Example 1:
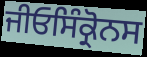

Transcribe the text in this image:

ਜੀਓਸਿੰਕ੍ਰੋਨਸ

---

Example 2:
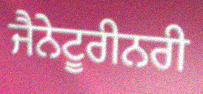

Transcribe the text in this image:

ਜੈਨੇਟੂਰੀਨਰੀ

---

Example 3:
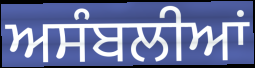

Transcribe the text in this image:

ਅਸੰਬਲੀਆਂ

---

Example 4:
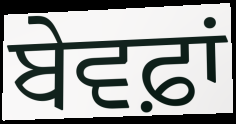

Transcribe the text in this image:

ਬੇਵਫ਼ਾਂ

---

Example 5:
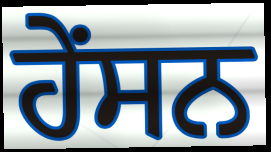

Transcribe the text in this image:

ਹੇਂਸਨ